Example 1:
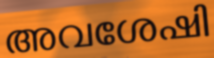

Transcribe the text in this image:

അവശേഷി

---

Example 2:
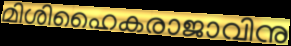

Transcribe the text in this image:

മിശിഹൈകരാജാവിനു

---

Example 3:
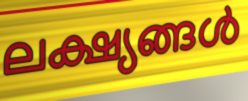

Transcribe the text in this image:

ലക്ഷ്യങ്ങൾ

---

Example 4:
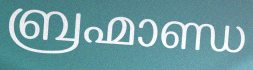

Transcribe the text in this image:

ബ്രഹ്മാണ്ഡ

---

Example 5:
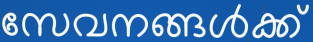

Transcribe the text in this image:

സേവനങ്ങൾക്ക്